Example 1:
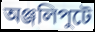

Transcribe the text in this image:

অঞ্জলিপুটে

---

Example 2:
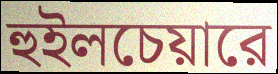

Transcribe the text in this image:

হুইলচেয়ারে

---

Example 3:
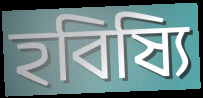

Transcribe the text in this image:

হবিষ্যি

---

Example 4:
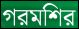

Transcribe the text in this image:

গরমশির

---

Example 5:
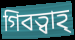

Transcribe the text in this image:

গিবত্বাহ্